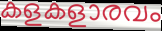
കളകളാരവം